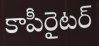
కాపీరైటర్